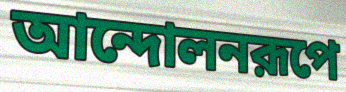
আন্দোলনরূপে